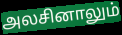
அலசினாலும்